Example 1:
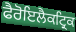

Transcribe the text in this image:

ਫੈਰੋਇਲੈਕਟ੍ਰਿਕ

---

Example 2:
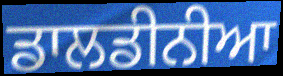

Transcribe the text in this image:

ਡਾਲਡੀਨੀਆ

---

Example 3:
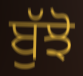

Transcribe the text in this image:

ਬੁੱਝੋ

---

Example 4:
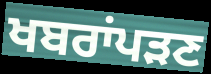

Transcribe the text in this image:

ਖਬਰਾਂਪੜਣ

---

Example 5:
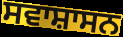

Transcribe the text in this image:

ਸਵਾਸ਼ਾਸਨ